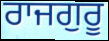
ਰਾਜਗੁਰੂ